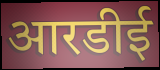
आरडीई